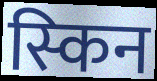
स्‍किन